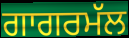
ਗਾਗਰਮੱਲ